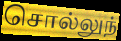
சொல்லுந்